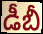
డీబీ